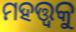
ମହତ୍ତ୍ଵକୁ